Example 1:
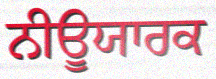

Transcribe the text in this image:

ਨੀਊਯਾਰਕ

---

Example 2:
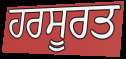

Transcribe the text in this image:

ਹਰਸੂਰਤ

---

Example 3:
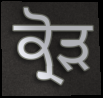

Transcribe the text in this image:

ਕ੍ਰੋੜ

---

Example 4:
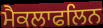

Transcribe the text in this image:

ਮੈਕਲਾਫਲਿਨ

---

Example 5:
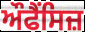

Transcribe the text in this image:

ਔਫੈਂਸਿਜ਼